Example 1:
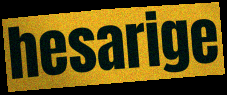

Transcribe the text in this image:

hesarige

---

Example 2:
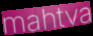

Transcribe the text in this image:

mahtva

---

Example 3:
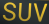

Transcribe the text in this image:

SUV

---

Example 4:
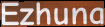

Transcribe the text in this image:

Ezhuna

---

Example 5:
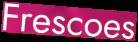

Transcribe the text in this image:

Frescoes